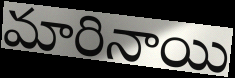
మారినాయి